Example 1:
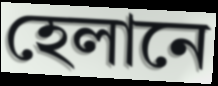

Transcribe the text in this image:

হেলানে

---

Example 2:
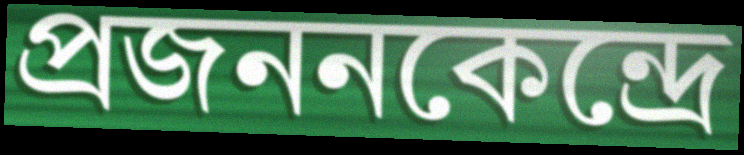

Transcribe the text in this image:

প্রজননকেন্দ্রে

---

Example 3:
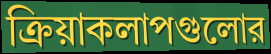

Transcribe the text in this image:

ক্রিয়াকলাপগুলোর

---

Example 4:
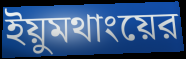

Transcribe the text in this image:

ইয়ুমথাংয়ের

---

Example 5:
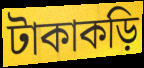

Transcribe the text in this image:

টাকাকড়ি